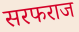
सरफराज